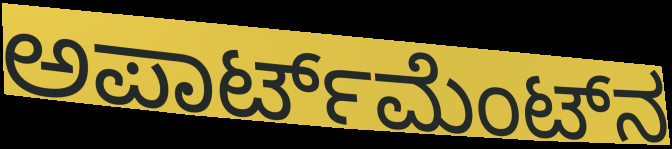
ಅಪಾರ್ಟ್‌ಮೆಂಟ್‌ನ